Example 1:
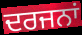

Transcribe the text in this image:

ਦਰਜਨਾਂ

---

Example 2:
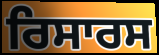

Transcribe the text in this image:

ਰਿਸਾਰਸ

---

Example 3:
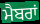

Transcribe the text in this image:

ਮੈਬਰਾਂ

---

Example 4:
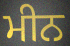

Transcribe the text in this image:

ਮੀਨ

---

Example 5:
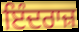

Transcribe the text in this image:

ਇੰਦਰਾਜ਼